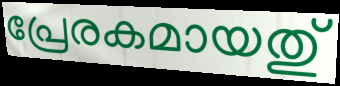
പ്രേരകമായതു്